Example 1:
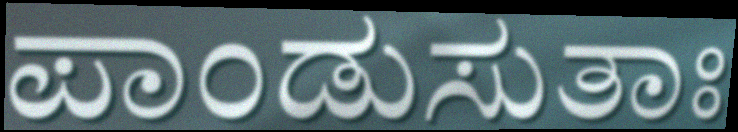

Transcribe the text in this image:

ಪಾಂಡುಸುತಾಃ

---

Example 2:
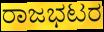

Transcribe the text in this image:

ರಾಜಭಟರ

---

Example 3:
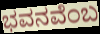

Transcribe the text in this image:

ಭವನವೆಂಬ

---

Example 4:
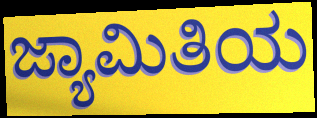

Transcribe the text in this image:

ಜ್ಯಾಮಿತಿಯ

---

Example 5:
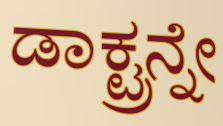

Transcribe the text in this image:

ಡಾಕ್ಟ್ರನ್ನೇ